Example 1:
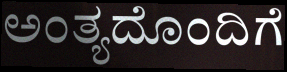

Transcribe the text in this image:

ಅಂತ್ಯದೊಂದಿಗೆ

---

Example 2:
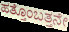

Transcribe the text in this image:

ಹತ್ತೊಂಬತ್ತನೇ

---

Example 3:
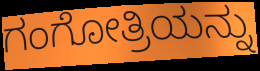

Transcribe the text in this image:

ಗಂಗೋತ್ರಿಯನ್ನು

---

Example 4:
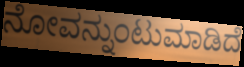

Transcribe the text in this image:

ನೋವನ್ನುಂಟುಮಾಡಿದೆ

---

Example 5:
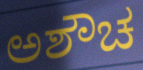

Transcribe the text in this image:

ಅಶೌಚ